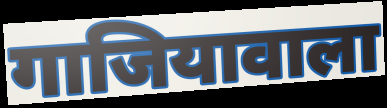
गाजियावाला